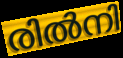
രിൽനി